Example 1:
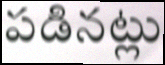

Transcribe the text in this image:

పడినట్లు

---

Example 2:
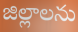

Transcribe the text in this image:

జిల్లాలను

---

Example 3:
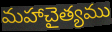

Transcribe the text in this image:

మహాచైత్యము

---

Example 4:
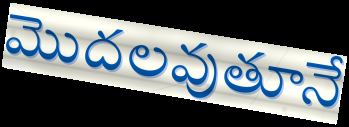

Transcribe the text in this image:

మొదలవుతూనే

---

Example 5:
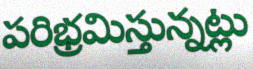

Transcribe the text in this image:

పరిభ్రమిస్తున్నట్లు